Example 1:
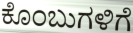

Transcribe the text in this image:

ಕೊಂಬುಗಳಿಗೆ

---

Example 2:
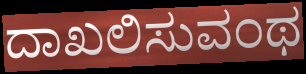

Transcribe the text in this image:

ದಾಖಲಿಸುವಂಥ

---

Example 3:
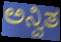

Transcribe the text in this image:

ಅನ್ವಿತ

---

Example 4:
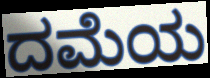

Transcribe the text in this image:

ದಮೆಯ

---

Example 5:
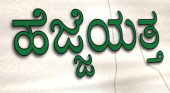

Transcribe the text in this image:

ಹೆಜ್ಜೆಯತ್ತ